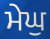
ਮੇਘੁ